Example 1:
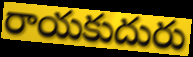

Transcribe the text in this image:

రాయకుదురు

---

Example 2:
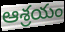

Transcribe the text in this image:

ఆశ్రయం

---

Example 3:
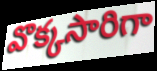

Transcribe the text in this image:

వొక్కసారిగా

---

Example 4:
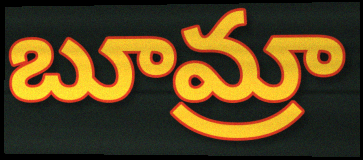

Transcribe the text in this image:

బూమ్రా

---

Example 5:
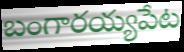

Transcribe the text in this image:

బంగారయ్యపేట